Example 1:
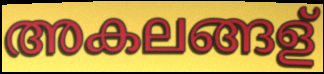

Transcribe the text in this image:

അകലങ്ങള്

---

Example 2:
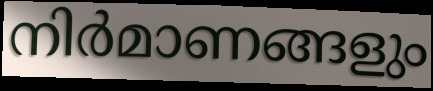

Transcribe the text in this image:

നിർമാണങ്ങളും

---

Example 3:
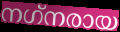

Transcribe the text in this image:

നഗ്‌നരായ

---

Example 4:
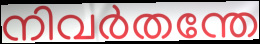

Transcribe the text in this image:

നിവർതന്തേ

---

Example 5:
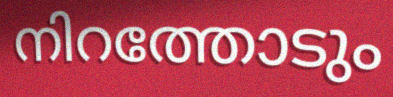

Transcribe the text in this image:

നിറത്തോടും